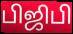
பிஜிபி